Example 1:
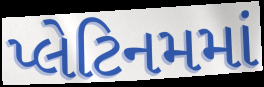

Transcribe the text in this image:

પ્લેટિનમમાં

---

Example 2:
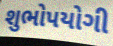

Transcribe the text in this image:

શુભોપયોગી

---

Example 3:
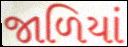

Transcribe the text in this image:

જાળિયાં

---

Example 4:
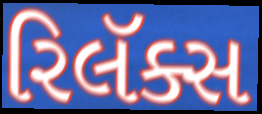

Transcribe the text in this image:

રિલૅક્સ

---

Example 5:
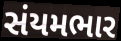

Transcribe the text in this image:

સંયમભાર